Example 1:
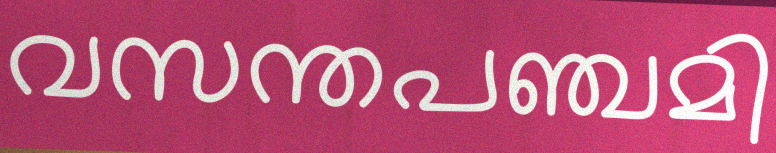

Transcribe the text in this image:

വസന്തപഞ്ചമി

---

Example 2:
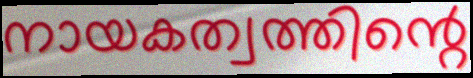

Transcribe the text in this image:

നായകത്വത്തിന്റെ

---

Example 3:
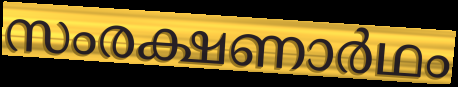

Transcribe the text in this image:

സംരക്ഷണാർഥം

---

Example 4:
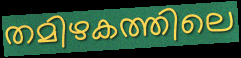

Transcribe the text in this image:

തമിഴകത്തിലെ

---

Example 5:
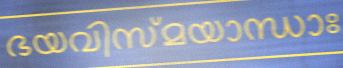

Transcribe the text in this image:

ഭയവിസ്മയാന്ധാഃ